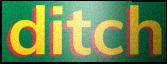
ditch